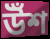
উঁশ